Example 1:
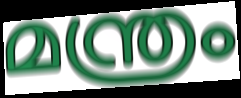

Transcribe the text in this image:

മന്ത്രം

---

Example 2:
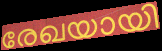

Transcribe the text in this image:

രേഖയായി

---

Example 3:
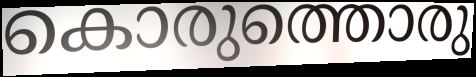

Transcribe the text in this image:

കൊരുത്തൊരു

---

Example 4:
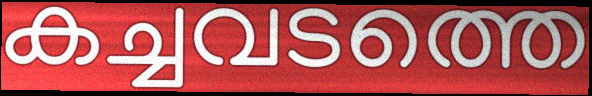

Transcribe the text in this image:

കച്ചവടത്തെ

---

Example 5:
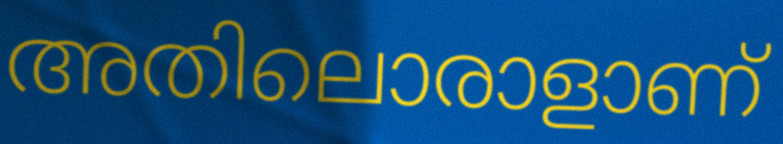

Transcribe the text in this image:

അതിലൊരാളാണ്